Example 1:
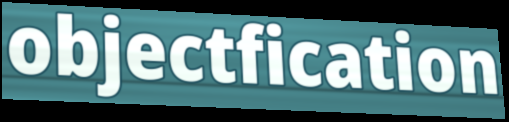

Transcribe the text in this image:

objectfication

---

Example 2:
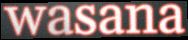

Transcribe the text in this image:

wasana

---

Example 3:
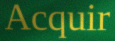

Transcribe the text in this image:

Acquir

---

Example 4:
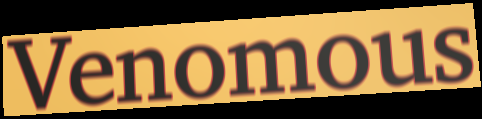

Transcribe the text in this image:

Venomous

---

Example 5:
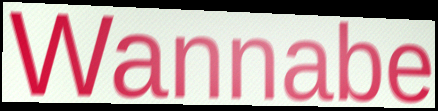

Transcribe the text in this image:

Wannabe